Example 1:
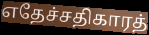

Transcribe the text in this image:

எதேச்சதிகாரத்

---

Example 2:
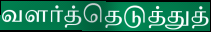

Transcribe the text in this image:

வளர்த்தெடுத்துத்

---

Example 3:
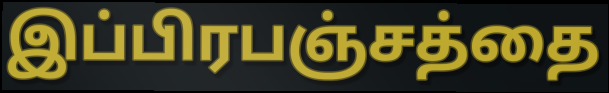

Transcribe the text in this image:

இப்பிரபஞ்சத்தை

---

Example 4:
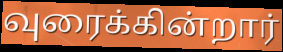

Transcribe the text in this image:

வுரைக்கின்றார்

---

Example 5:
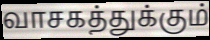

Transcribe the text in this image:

வாசகத்துக்கும்